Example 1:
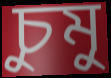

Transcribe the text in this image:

চুমু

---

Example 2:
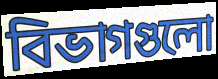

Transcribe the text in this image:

বিভাগগুলো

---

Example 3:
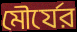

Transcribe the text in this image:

মৌর্যের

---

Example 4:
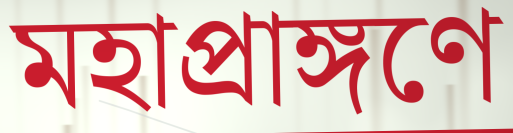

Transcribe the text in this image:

মহাপ্রাঙ্গণে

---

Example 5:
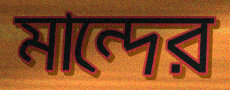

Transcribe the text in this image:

মান্দের